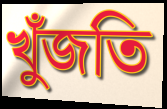
খুঁজতি